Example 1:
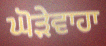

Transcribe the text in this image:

ਘੋੜੇਵਾਹਾ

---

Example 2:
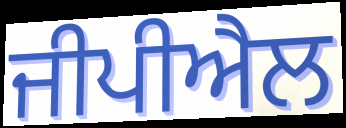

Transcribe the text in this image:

ਜੀਪੀਐਲ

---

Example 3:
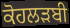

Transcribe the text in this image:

ਕੋਹਲੜਬੀ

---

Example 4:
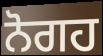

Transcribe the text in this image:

ਨੋਗਹ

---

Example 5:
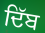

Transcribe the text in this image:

ਦਿੱਬ